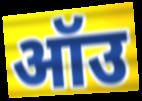
ऑउ